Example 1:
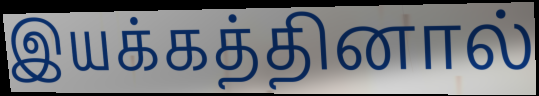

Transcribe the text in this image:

இயக்கத்தினால்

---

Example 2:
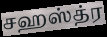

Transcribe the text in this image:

சஹஸ்த்ர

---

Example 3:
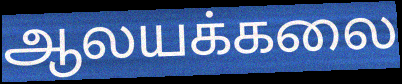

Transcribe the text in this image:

ஆலயக்கலை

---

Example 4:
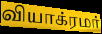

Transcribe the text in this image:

வியாக்ரமர்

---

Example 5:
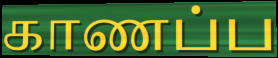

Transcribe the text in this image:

காணப்ப